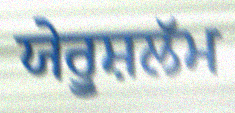
ਯੇਰੂਸ਼ਲੱਮ